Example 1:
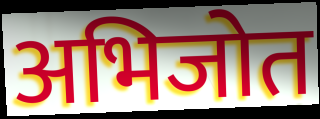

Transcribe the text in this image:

अभिजोत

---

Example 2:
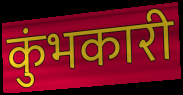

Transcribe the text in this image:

कुंभकारी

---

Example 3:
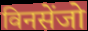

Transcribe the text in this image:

विनसेंजो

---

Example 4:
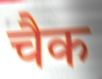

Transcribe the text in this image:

चैक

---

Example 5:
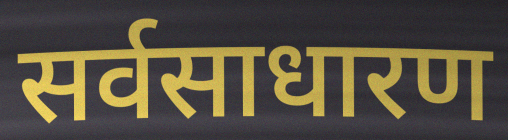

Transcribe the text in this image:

सर्वसाधारण